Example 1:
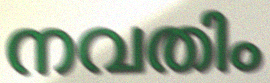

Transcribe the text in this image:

നവതിം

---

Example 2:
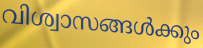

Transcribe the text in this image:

വിശ്വാസങ്ങൾക്കും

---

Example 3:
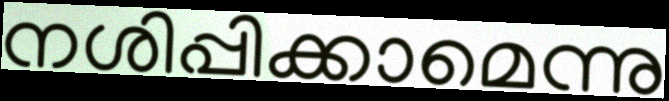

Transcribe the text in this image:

നശിപ്പിക്കാമെന്നു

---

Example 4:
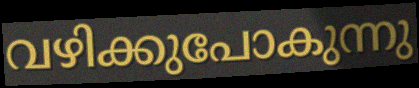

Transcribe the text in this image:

വഴിക്കുപോകുന്നു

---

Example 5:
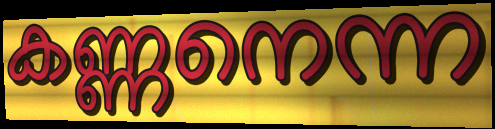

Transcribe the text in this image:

കണ്ണനെന്ന